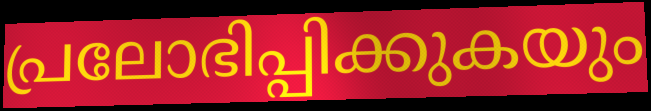
പ്രലോഭിപ്പിക്കുകയും